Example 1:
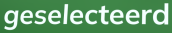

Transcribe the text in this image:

geselecteerd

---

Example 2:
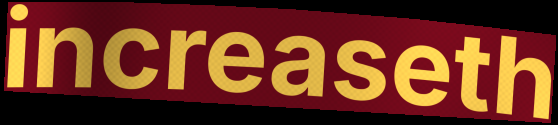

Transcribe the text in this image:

increaseth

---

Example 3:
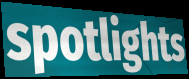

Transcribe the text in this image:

spotlights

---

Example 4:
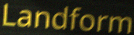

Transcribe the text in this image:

Landform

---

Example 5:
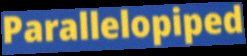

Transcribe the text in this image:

Parallelopiped